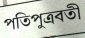
পতিপুত্রবতী